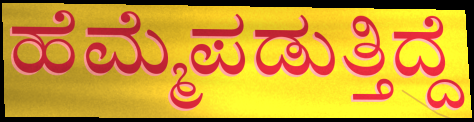
ಹೆಮ್ಮೆಪಡುತ್ತಿದ್ದೆ